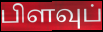
பிளவுப்